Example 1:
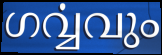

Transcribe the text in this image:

ഗൎവ്വവും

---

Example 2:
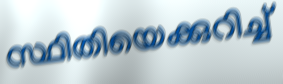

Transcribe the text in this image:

സ്ഥിതിയെക്കുറിച്ച്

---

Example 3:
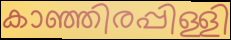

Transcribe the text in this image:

കാഞ്ഞിരപ്പിള്ളി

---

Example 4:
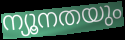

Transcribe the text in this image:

ന്യൂനതയും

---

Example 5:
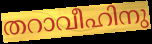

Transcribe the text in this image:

തറാവീഹിനു